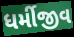
ધર્મીજીવ